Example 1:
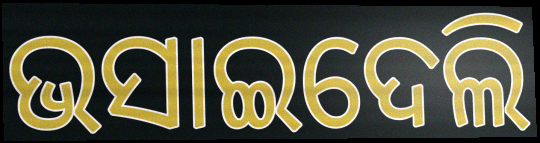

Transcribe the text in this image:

ଭସାଇଦେଲି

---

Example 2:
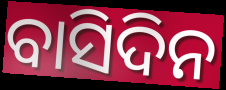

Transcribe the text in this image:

ବାସିଦିନ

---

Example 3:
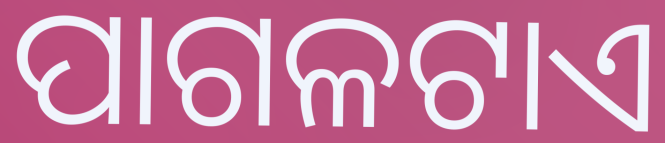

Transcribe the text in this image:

ପାଗଳଟାଏ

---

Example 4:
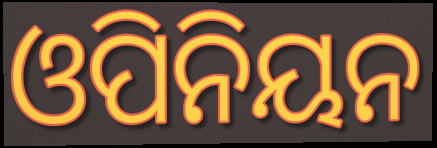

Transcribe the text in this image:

ଓପିନିୟନ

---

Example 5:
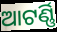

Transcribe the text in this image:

ଆଟର୍ଣ୍ଣି